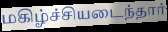
மகிழ்ச்சியடைந்தார்